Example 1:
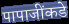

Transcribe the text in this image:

पापाजींकडे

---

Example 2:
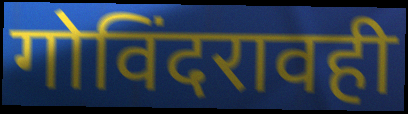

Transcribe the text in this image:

गोविंदरावही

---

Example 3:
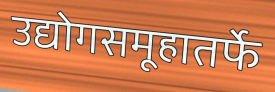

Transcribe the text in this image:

उद्योगसमूहातर्फे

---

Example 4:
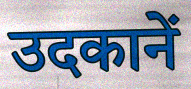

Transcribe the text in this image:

उदकानें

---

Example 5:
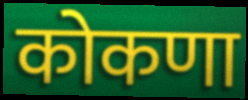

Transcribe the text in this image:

कोकणा